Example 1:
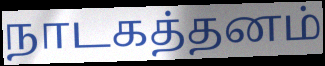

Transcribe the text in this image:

நாடகத்தனம்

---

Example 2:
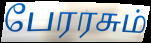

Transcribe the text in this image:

பேரரசும்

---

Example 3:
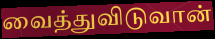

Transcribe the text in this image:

வைத்துவிடுவான்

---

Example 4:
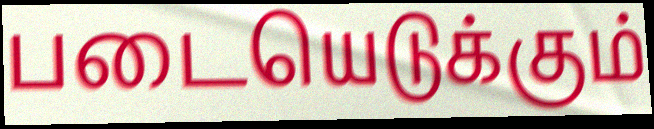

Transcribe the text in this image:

படையெடுக்கும்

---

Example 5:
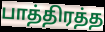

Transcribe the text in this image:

பாத்திரத்த